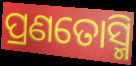
ପ୍ରଣତୋସ୍ମି